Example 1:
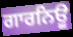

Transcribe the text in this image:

ਗਾਰਨਿਊ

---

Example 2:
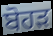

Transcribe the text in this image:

ਬੋਹੜ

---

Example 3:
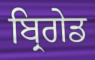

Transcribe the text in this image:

ਬ੍ਰਿਗੇਡ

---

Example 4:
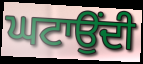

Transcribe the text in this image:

ਘਟਾਉਂਦੀ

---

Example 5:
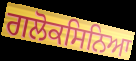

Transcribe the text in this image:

ਗਲੋਕਸਿਨਿਆ